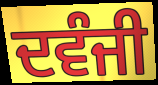
ਦਵੰਜੀ